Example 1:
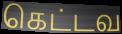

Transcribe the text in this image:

கெட்டவ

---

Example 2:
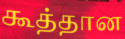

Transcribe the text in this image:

கூத்தான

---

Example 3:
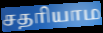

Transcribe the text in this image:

சதரியாம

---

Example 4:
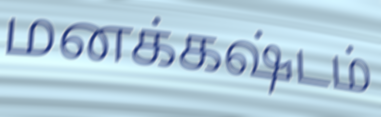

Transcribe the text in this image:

மனக்கஷ்டம்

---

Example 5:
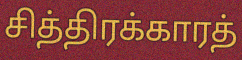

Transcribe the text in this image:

சித்திரக்காரத்